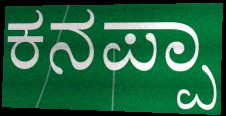
ಕನಪ್ಪಾ